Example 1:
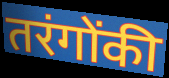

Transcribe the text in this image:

तरंगोंकी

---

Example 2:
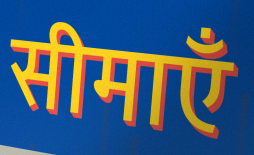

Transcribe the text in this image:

सीमाएँ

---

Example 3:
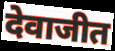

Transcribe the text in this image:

देवाजीत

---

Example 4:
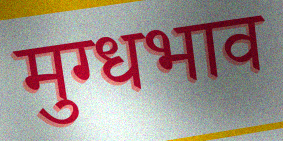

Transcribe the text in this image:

मुग्धभाव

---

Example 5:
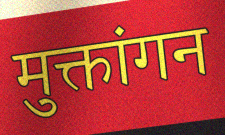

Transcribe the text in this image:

मुक्तांगन